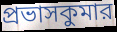
প্রভাসকুমার